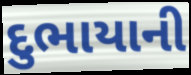
દુભાયાની